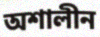
অশালীন